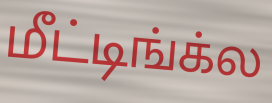
மீட்டிங்க்ல